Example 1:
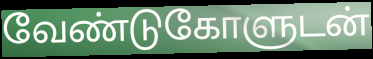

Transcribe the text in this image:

வேண்டுகோளுடன்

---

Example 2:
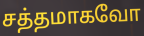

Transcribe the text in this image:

சத்தமாகவோ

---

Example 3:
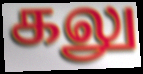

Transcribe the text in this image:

கலு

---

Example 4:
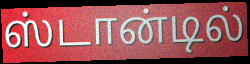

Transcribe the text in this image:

ஸ்டான்டில்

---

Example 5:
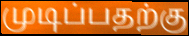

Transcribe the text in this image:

முடிப்பதற்கு